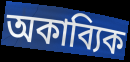
অকাব্যিক